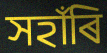
সহাঁৰি